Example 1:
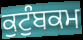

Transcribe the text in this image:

ਕੁਟੁੰਬਕਮ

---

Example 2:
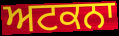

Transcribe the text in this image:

ਅਟਕਨਾ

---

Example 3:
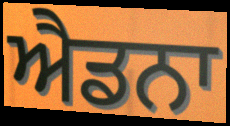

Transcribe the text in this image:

ਐਡਨਾ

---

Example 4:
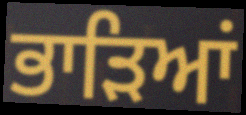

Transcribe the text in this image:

ਭਾੜਿਆਂ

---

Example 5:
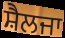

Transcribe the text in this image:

ਸ਼ੈਲਜਾ